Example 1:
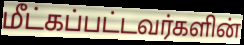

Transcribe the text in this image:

மீட்கப்பட்டவர்களின்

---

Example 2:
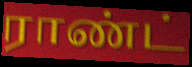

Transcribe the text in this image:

ராண்ட்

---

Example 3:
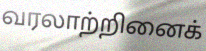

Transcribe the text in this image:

வரலாற்றினைக்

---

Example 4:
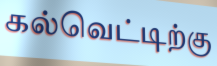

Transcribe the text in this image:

கல்வெட்டிற்கு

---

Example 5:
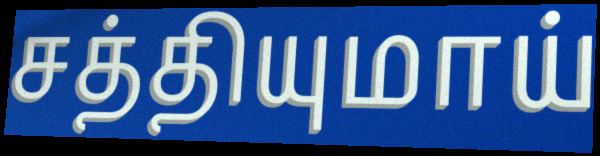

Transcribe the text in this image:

சத்தியுமாய்